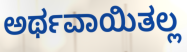
ಅರ್ಥವಾಯಿತಲ್ಲ